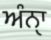
ਅੰਨੑਾ